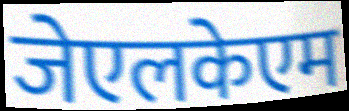
जेएलकेएम